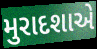
મુરાદશાએ